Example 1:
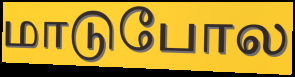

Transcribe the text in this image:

மாடுபோல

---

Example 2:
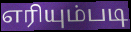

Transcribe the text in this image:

எரியும்படி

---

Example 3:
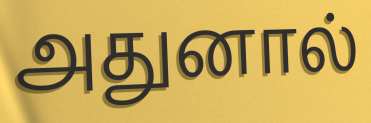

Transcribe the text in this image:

அதுனால்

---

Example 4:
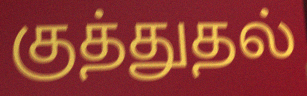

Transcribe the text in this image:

குத்துதல்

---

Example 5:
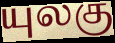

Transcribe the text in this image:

யுலகு